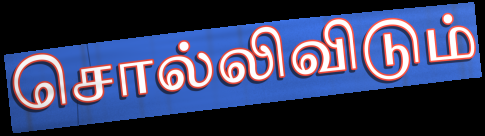
சொல்லிவிடும்